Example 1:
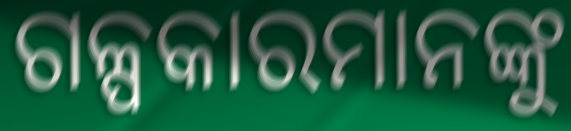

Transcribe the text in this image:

ଗଳ୍ପକାରମାନଙ୍କୁ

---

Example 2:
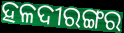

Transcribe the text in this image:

ହଳଦୀରଙ୍ଗର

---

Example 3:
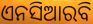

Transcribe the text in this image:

ଏନସିଆରବି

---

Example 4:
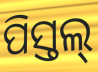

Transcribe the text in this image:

ପିସ୍ତଲ୍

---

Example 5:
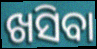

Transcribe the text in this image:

ଖସିବା